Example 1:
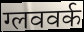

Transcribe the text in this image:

ग्लववर्क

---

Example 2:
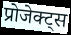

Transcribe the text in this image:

प्रोजेक्ट्स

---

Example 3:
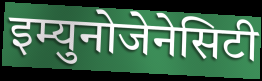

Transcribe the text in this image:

इम्युनोजेनेसिटी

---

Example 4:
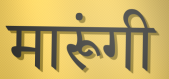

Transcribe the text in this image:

मारूंगी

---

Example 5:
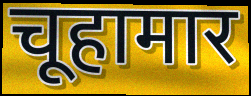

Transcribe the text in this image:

चूहामार